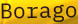
Borago